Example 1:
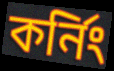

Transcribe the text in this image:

কর্নিং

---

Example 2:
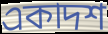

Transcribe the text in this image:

একাদশ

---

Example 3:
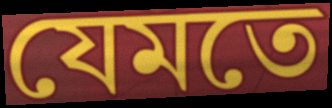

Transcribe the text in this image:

যেমতে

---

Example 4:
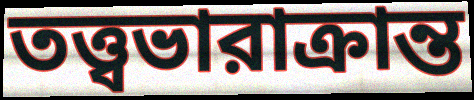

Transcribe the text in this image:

তত্ত্বভারাক্রান্ত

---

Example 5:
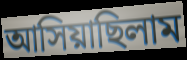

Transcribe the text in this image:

আসিয়াছিলাম